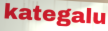
kategalu